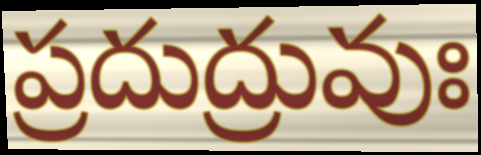
ప్రదుద్రువుః